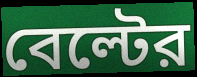
বেল্টের